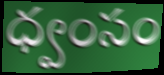
ధ్వంసం